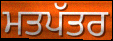
ਮਤਪੱਤਰ